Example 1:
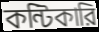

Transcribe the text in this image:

কন্টিকারি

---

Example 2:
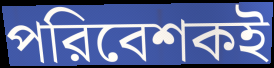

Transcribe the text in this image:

পরিবেশকই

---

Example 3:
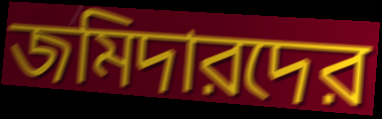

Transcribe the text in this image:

জমিদারদের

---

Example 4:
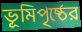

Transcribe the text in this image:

ভূমিপৃষ্ঠের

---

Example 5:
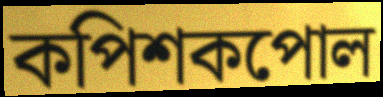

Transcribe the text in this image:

কপিশকপোল